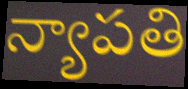
న్యాపతి